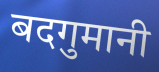
बदगुमानी